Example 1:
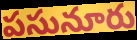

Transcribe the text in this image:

పసునూరు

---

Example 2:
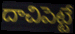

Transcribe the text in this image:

దాచిపెట్టే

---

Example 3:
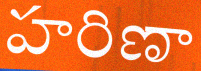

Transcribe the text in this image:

హరిణా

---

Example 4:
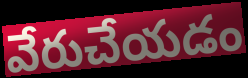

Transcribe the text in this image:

వేరుచేయడం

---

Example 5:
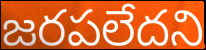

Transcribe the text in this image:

జరపలేదని